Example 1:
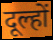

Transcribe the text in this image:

दूल्हों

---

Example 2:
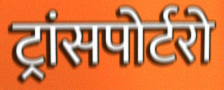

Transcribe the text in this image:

ट्रांसपोर्टरो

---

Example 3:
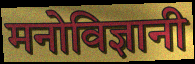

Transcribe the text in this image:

मनोविज्ञानी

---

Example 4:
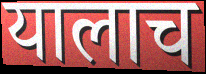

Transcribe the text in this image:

यालाच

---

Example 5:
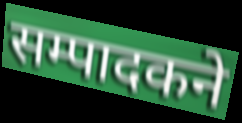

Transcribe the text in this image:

सम्पादकने